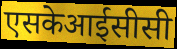
एसकेआईसीसी